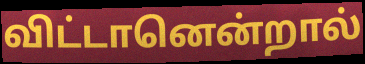
விட்டானென்றால்